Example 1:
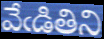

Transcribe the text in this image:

వేఁడితిని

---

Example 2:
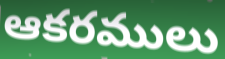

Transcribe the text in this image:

ఆకరములు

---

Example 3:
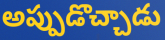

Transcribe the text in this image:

అప్పుడొచ్చాడు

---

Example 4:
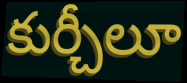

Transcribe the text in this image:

కుర్చీలూ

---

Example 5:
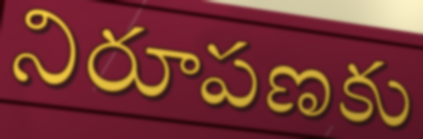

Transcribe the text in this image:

నిరూపణకు